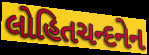
લોહિતચન્દનેન